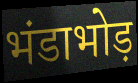
भंडाभोड़